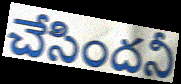
చేసిందనీ